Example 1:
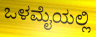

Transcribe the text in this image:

ಒಳಮೈಯಲ್ಲಿ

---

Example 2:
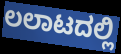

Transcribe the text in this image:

ಲಲಾಟದಲ್ಲಿ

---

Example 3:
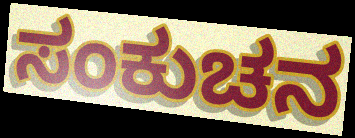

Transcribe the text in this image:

ಸಂಕುಚನ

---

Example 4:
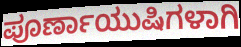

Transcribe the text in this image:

ಪೂರ್ಣಾಯುಷಿಗಳಾಗಿ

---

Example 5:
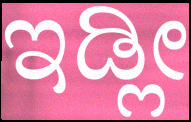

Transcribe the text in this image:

ಇಡ್ಲೀ